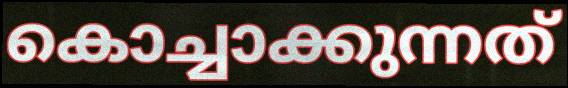
കൊച്ചാക്കുന്നത്